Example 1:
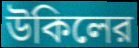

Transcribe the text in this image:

উকিলের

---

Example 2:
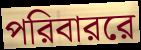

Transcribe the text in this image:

পরিবাররে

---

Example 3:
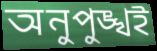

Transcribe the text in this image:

অনুপুঙ্খই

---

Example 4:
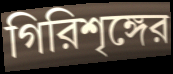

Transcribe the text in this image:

গিরিশৃঙ্গের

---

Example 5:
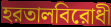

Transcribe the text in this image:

হরতালবিরোধী